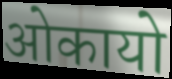
ओकायो